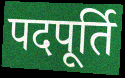
पदपूर्ति